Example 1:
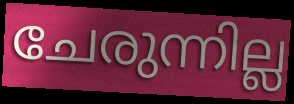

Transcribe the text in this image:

ചേരുന്നില്ല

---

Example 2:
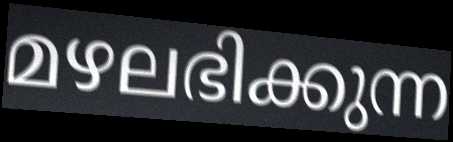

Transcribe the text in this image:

മഴലഭിക്കുന്ന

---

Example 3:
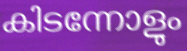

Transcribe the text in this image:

കിടന്നോളും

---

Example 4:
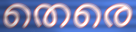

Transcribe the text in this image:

തെരെ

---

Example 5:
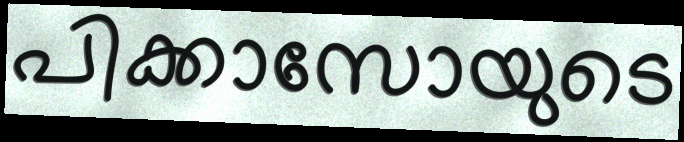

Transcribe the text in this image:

പിക്കാസോയുടെ